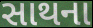
સાથના